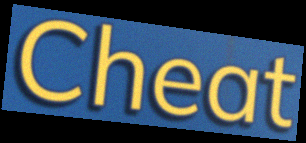
Cheat